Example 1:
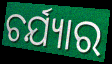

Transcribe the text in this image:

ଚର୍ଯ୍ୟାର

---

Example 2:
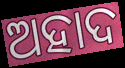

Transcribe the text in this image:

ଅହାଦ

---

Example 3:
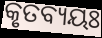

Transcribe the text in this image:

କୃତବ୍ୟୟଃ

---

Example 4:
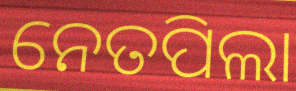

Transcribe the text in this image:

ନେତପିଲା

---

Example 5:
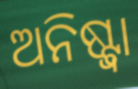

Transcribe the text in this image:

ଅନିଷ୍ଟ୍ୱା